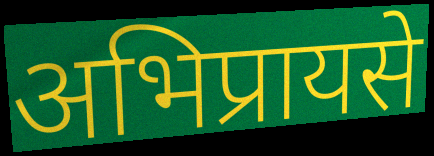
अभिप्रायसे